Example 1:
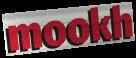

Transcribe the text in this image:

mookh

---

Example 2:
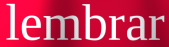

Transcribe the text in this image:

lembrar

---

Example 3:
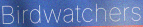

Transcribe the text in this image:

Birdwatchers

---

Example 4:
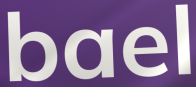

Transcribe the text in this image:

bael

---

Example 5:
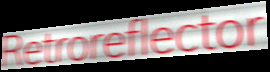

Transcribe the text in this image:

Retroreflector